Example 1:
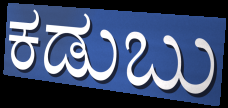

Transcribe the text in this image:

ಕಡುಬು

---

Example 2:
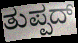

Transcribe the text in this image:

ತುಪ್ಪದ್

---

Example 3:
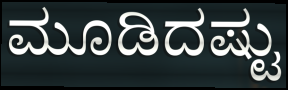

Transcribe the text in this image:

ಮೂಡಿದಷ್ಟು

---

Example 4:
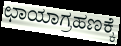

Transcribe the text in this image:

ಛಾಯಾಗ್ರಹಣಕ್ಕೆ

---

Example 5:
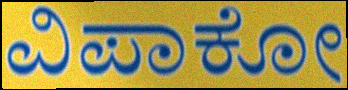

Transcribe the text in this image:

ವಿಪಾಕೋ